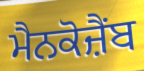
ਮੈਨਕੋਜ਼ੈਂਬ